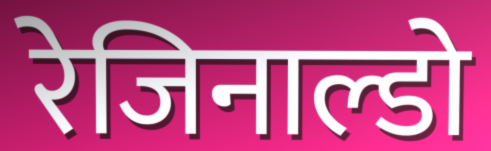
रेजिनाल्डो